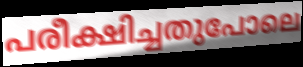
പരീക്ഷിച്ചതുപോലെ